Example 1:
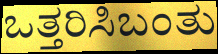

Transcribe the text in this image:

ಒತ್ತರಿಸಿಬಂತು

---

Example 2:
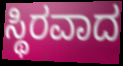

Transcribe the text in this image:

ಸ್ಥಿರವಾದ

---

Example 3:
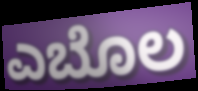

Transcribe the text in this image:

ಎಬೊಲ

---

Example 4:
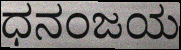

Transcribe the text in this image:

ಧನಂಜಯ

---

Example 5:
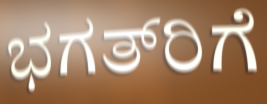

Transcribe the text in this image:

ಭಗತ್‍ರಿಗೆ